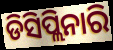
ଡିସିପ୍ଲିନାରି